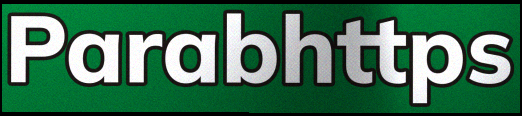
Parabhttps